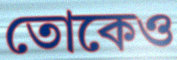
তোকেও